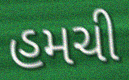
હમચી